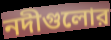
নদীগুলোর